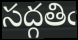
సద్గతిఁ